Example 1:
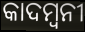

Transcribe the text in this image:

କାଦମ୍ୱନୀ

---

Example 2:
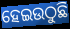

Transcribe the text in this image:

ହେଇଉଠୁଛି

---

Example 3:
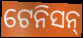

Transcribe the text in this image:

ଟେନିସନ୍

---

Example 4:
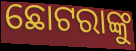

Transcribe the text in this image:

ଛୋଟରାଙ୍କୁ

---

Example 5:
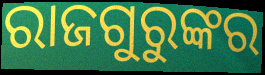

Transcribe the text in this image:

ରାଜଗୁରୁଙ୍କର